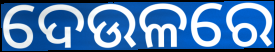
ଦେଉଳରେ